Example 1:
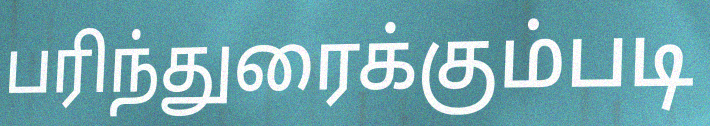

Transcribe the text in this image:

பரிந்துரைக்கும்படி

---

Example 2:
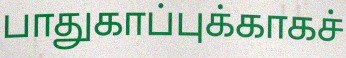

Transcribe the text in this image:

பாதுகாப்புக்காகச்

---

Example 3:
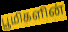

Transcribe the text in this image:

பூமிகளின்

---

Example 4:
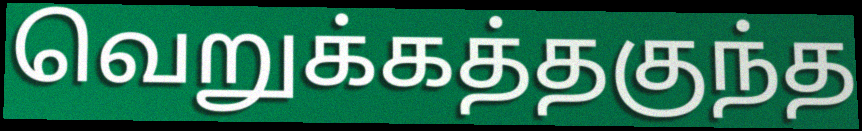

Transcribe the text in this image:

வெறுக்கத்தகுந்த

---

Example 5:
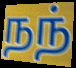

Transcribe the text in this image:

நந்